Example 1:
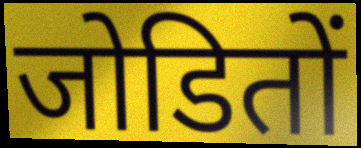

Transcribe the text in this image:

जोडितों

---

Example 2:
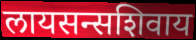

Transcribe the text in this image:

लायसन्सशिवाय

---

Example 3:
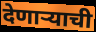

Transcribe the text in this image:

देणाऱ्याची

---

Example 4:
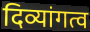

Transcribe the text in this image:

दिव्यांगत्व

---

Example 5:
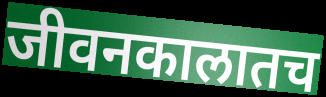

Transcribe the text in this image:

जीवनकालातच